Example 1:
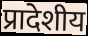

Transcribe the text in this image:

प्रादेशीय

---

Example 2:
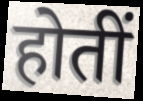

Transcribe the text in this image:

होतीं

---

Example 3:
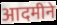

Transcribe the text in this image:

आदमीने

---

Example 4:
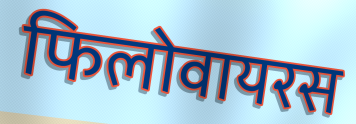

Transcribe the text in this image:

फिलोवायरस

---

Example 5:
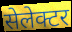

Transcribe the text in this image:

सेलेक्टर